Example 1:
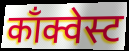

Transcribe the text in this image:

काँक्वेस्ट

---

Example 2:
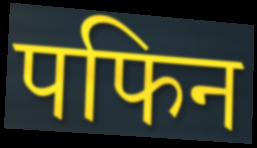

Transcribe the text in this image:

पफिन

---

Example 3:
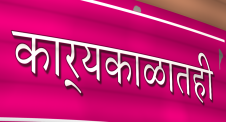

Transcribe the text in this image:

कार्यकाळातही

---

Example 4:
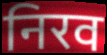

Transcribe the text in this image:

निरव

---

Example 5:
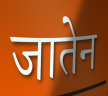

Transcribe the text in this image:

जातेन